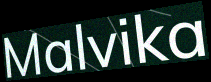
Malvika